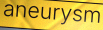
aneurysm